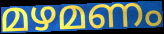
മഴമണം